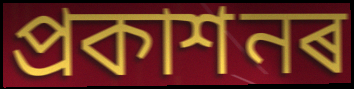
প্ৰকাশনৰ